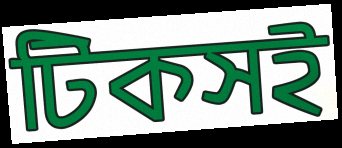
টিকসই